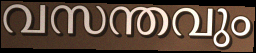
വസന്തവും